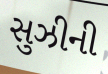
સુઝીની